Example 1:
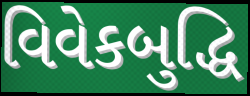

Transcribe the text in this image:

વિવેકબુદ્ધિ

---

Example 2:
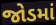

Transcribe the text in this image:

જોડમાં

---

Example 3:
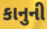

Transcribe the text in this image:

કાનુની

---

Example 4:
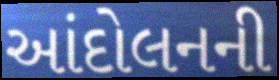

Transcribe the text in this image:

આંદોલનની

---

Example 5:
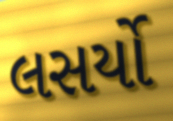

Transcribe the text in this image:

લસર્યો